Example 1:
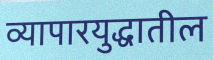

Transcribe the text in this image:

व्यापारयुद्धातील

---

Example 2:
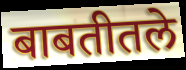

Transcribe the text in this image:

बाबतीतले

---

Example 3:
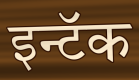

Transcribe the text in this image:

इन्टॅक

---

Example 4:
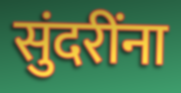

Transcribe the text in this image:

सुंदरींना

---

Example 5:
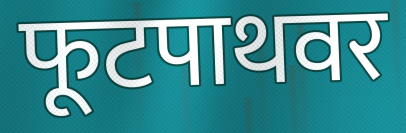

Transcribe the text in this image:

फूटपाथवर